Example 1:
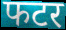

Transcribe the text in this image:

फटर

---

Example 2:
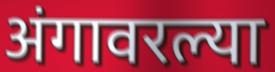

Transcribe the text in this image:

अंगावरल्या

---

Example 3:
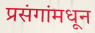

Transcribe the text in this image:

प्रसंगांमधून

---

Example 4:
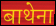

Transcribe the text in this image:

बाथेना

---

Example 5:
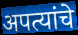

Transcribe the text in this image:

अपत्यांचे